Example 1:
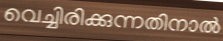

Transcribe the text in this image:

വെച്ചിരിക്കുന്നതിനാൽ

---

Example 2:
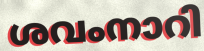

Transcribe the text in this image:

ശവംനാറി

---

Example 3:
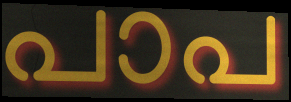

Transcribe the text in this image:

പാപ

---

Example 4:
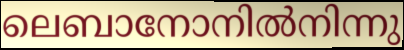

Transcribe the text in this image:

ലെബാനോനിൽനിന്നു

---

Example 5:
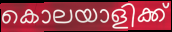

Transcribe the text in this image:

കൊലയാളിക്ക്